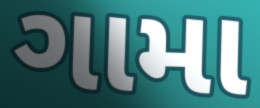
ગામા